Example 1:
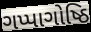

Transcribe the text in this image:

ગપ્પાગોષ્ઠિ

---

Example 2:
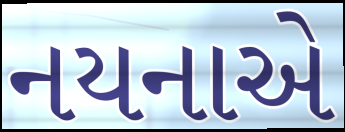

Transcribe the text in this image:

નયનાએ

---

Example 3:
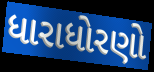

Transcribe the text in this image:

ધારાધોરણો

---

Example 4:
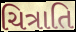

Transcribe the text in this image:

ચિત્રાતિ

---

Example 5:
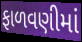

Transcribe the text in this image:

ફાળવણીમાં